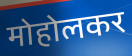
मोहोलकर